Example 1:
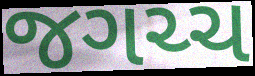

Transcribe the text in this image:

જગચ્ચ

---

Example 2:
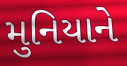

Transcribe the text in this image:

મુનિયાને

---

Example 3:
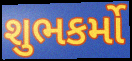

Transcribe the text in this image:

શુભકર્મો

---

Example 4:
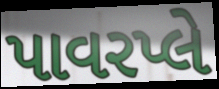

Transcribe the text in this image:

પાવરપ્લે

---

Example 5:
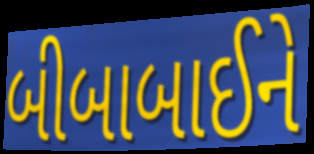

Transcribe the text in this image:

બીબાબાઈને